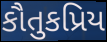
કૌતુકપ્રિય